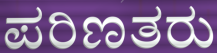
ಪರಿಣತರು